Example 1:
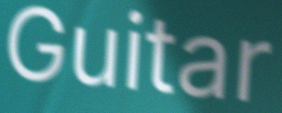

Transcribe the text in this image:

Guitar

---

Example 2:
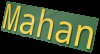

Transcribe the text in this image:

Mahan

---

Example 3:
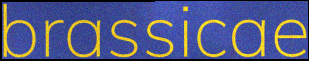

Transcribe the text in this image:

brassicae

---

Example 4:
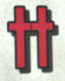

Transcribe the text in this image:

tt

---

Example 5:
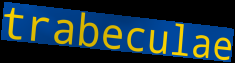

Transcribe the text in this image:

trabeculae